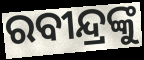
ରବୀନ୍ଦ୍ରଙ୍କୁ